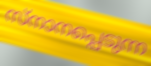
സ്നാനപ്പെടുന്ന